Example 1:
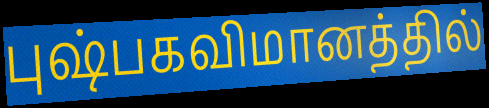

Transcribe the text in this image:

புஷ்பகவிமானத்தில்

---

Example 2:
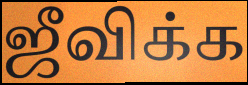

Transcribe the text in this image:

ஜீவிக்க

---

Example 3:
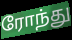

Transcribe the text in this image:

ரோந்து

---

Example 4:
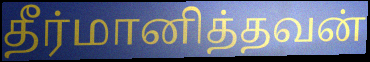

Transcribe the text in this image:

தீர்மானித்தவன்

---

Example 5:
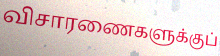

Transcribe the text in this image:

விசாரணைகளுக்குப்